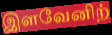
இளவேனிற்